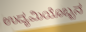
ಉದ್ಯಮಿಯೊಬ್ಬನ